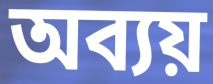
অব্যয়